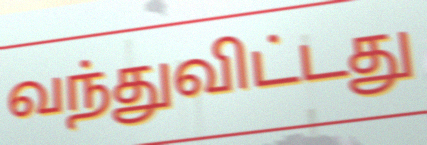
வந்துவிட்டது